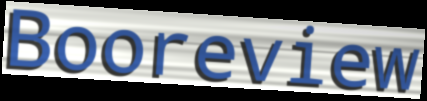
Booreview